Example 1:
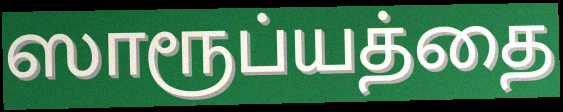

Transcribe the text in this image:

ஸாரூப்யத்தை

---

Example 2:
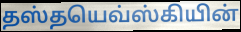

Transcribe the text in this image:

தஸ்தயெவ்ஸ்கியின்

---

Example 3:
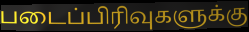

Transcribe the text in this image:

படைப்பிரிவுகளுக்கு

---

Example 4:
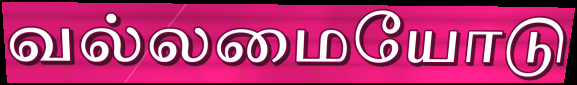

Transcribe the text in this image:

வல்லமையோடு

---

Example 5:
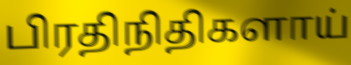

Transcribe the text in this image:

பிரதிநிதிகளாய்